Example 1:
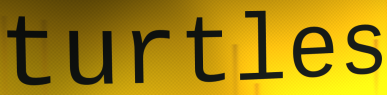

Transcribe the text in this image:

turtles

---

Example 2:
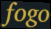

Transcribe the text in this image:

fogo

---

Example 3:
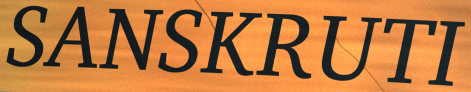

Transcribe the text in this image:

SANSKRUTI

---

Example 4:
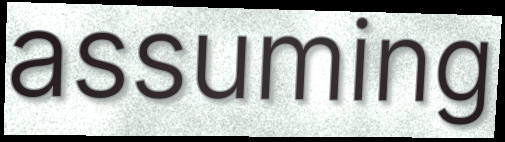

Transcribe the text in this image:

assuming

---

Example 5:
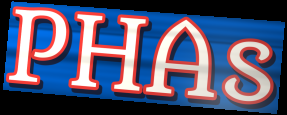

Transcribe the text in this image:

PHAs